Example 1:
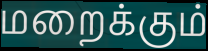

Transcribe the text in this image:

மறைக்கும்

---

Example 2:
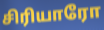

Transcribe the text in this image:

சிரியாரோ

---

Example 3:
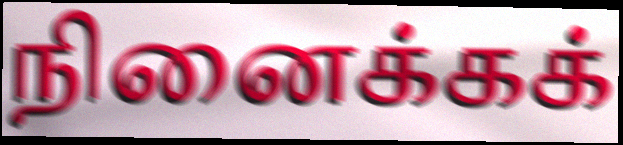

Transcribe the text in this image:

நினைக்கக்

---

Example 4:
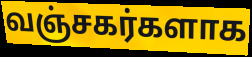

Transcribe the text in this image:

வஞ்சகர்களாக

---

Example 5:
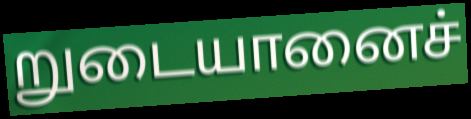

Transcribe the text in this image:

றுடையானைச்